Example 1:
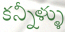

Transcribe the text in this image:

కన్నీళ్ళు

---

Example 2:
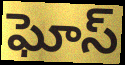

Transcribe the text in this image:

ఘోస్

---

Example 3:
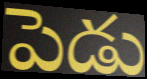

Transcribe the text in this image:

పెడు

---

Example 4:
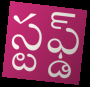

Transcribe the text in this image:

స్టఫ్డ్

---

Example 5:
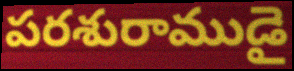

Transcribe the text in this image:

పరశురాముడై